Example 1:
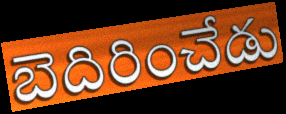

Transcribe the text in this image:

బెదిరించేడు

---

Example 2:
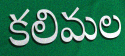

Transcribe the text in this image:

కలిమల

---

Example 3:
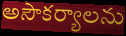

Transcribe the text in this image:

అసౌకర్యాలను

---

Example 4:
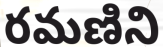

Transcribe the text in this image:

రమణిని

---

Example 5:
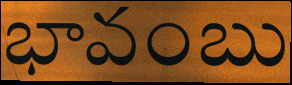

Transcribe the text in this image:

భావంబు